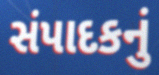
સંપાદકનું